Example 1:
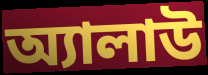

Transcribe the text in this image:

অ্যালাউ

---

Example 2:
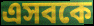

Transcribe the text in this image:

এসবকে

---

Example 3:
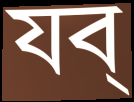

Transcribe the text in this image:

যব্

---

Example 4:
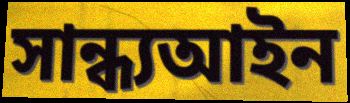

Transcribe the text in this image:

সান্ধ্যআইন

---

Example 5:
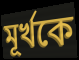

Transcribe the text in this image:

মূর্খকে